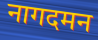
नागदमन